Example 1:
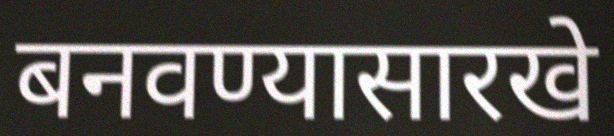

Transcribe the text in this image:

बनवण्यासारखे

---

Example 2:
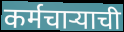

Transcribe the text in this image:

कर्मचार्‍याची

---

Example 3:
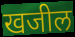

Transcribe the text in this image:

खजील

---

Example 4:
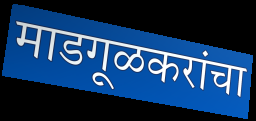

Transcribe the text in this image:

माडगूळकरांचा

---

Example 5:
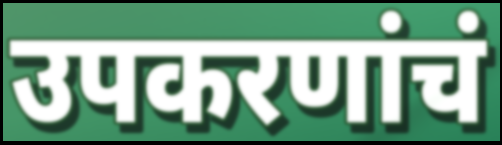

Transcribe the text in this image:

उपकरणांचं